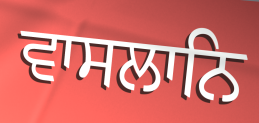
ਵਾਸਲਾਨਿ